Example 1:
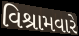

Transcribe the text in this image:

વિશ્રામવારે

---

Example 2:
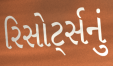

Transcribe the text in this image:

રિસોર્ટ્સનું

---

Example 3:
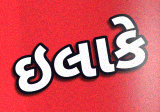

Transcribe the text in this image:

ઇલાકે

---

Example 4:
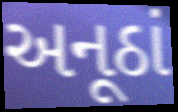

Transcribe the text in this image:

અનૂઠાં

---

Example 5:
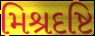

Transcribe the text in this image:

મિશ્રદષ્ટિ